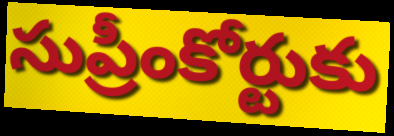
సుప్రీంకోర్టుకు